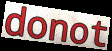
donot